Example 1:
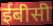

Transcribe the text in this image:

ईबीसी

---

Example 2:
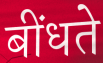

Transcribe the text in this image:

बींधते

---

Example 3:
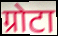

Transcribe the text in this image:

ग्रोटा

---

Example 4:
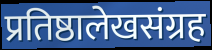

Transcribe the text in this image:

प्रतिष्ठालेखसंग्रह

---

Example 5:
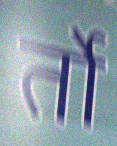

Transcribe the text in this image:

र्तो